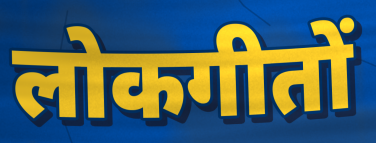
लोकगीतों